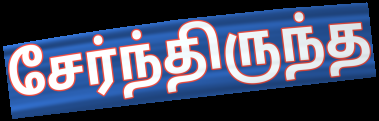
சேர்ந்திருந்த